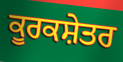
ਕੂਰਕਸ਼ੇਤਰ